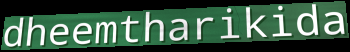
dheemtharikida